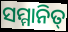
ସମ୍ମାନିତ୍